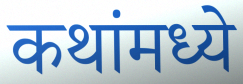
कथांमध्ये